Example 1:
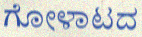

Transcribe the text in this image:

ಗೋಳಾಟದ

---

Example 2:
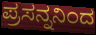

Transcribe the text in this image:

ಪ್ರಸನ್ನನಿಂದ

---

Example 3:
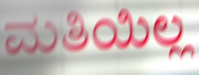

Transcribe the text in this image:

ಮತಿಯಿಲ್ಲ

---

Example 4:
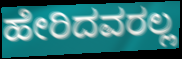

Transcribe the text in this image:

ಹೇರಿದವರಲ್ಲ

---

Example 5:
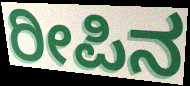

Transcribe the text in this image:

ರೀಪಿನ